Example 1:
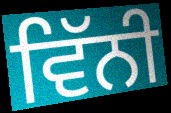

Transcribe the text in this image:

ਵਿੱਨੀ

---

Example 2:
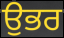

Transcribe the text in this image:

ਉਭਰ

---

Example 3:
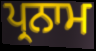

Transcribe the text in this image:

ਪ੍ਰਨਾਮ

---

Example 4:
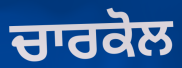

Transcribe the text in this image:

ਚਾਰਕੋਲ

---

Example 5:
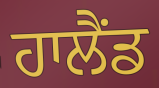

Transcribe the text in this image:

ਹਾਲੈਂਡ